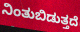
ನಿಂತುಬಿಡುತ್ತದೆ